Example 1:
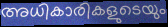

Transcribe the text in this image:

അധികാരികളുടെയും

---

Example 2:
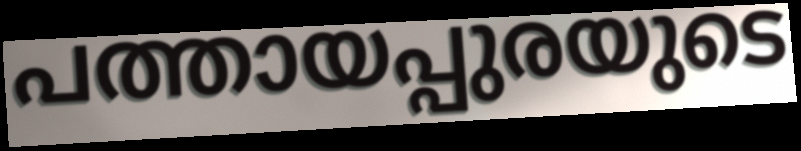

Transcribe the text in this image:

പത്തായപ്പുരയുടെ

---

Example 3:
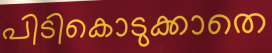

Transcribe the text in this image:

പിടികൊടുക്കാതെ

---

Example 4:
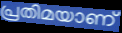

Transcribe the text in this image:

പ്രതിമയാണ്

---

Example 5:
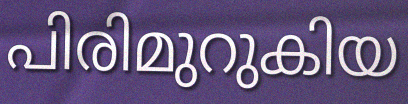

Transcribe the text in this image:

പിരിമുറുകിയ